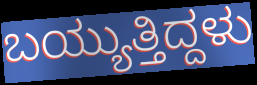
ಬಯ್ಯುತ್ತಿದ್ದಳು